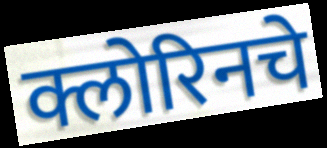
क्लोरिनचे